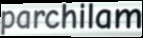
parchilam